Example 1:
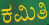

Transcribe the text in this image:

ಕಮಿತಿ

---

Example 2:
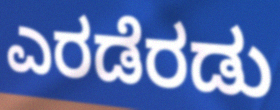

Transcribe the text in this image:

ಎರಡೆರಡು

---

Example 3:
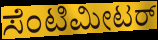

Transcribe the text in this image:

ಸೆಂಟಿಮೀಟರ್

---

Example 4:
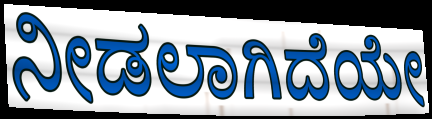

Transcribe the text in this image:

ನೀಡಲಾಗಿದೆಯೇ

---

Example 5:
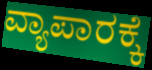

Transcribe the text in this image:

ವ್ಯಾಪಾರಕ್ಕೆ